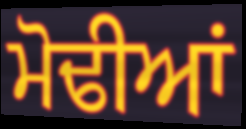
ਮੋਢੀਆਂ